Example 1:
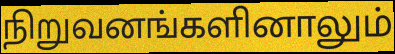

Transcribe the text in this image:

நிறுவனங்களினாலும்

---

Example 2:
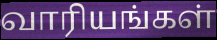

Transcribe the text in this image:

வாரியங்கள்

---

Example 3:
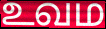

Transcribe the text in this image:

உவம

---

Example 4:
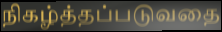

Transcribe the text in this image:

நிகழ்த்தப்படுவதை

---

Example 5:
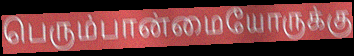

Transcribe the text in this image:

பெரும்பான்மையோருக்கு